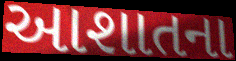
આશાતના